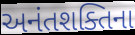
અનંતશક્તિના